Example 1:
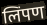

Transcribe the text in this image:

लिंपण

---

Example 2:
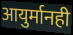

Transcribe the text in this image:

आयुर्मानही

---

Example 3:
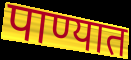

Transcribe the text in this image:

पाण्यात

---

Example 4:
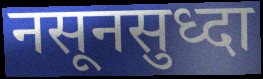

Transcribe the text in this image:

नसूनसुध्दा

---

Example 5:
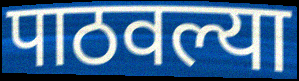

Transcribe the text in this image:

पाठवल्या